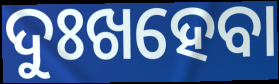
ଦୁଃଖହେବା